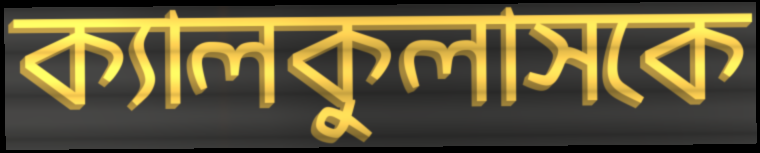
ক্যালকুলাসকে